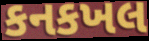
કનકખલ